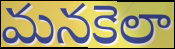
మనకెలా